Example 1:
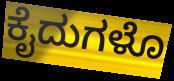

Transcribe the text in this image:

ಕೈದುಗಳೊ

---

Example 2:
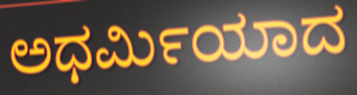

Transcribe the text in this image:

ಅಧರ್ಮಿಯಾದ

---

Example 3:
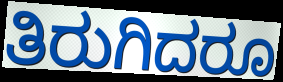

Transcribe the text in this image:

ತಿರುಗಿದರೂ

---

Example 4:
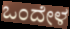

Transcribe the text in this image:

ಒಂದೇಳ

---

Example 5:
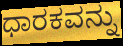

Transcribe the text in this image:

ಧಾರಕವನ್ನು